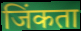
जिंकता